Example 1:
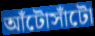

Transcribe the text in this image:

আঁটোসাঁটো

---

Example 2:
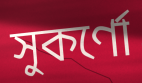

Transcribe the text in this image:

সুকর্ণো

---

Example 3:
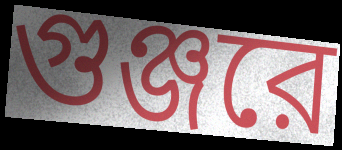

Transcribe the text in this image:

গুঞ্জরে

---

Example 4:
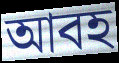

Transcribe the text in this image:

আবহ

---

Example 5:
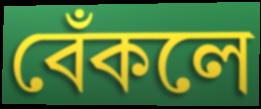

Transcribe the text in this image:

বেঁকলে